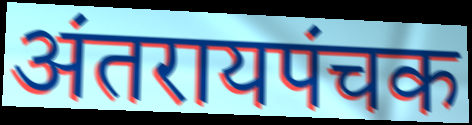
अंतरायपंचक